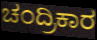
ಚಂದ್ರಿಕಾರ